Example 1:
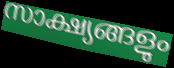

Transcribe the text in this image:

സാക്ഷ്യങ്ങളും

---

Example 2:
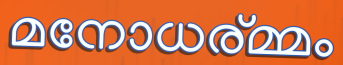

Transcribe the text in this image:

മനോധര്മ്മം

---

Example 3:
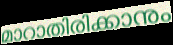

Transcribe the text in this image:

മാറാതിരിക്കാനും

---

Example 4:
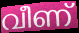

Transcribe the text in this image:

വീണ്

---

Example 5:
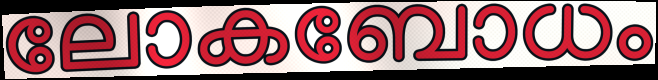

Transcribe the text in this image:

ലോകബോധം